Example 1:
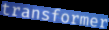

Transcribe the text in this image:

transformer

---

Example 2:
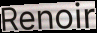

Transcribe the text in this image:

Renoir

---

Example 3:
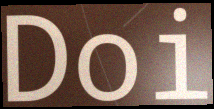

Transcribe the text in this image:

Doi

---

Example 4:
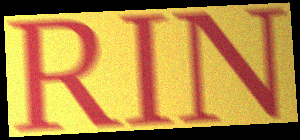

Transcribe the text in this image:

RIN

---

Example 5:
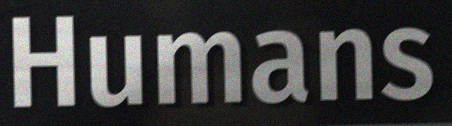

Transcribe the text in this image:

Humans